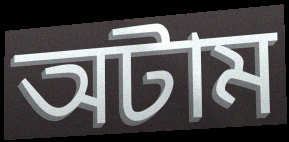
অটাম